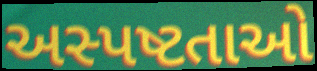
અસ્પષ્ટતાઓ